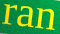
ran